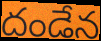
దండేన